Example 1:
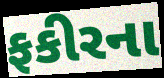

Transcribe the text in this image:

ફકીરના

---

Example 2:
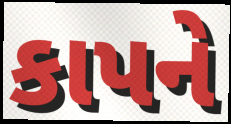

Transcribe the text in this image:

કાપને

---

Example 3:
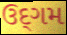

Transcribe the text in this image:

ઉદ્‌ગમ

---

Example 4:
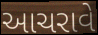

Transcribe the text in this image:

આચરાવે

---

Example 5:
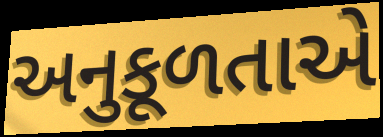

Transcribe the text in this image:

અનુકૂળતાએ